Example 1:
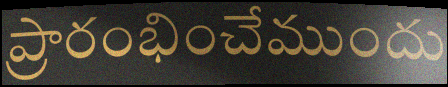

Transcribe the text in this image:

ప్రారంభించేముందు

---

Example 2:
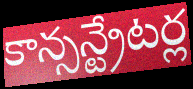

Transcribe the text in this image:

కాన్సన్ట్రేటర్ల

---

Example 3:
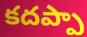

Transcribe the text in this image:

కదప్పా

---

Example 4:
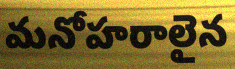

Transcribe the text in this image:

మనోహరాలైన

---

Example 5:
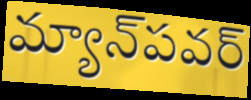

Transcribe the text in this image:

మ్యాన్‌పవర్